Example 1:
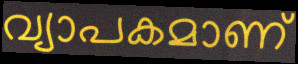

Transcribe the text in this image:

വ്യാപകമാണ്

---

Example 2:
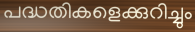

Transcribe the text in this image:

പദ്ധതികളെക്കുറിച്ചും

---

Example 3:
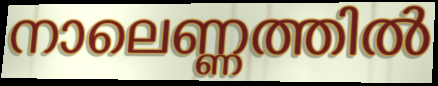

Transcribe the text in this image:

നാലെണ്ണത്തിൽ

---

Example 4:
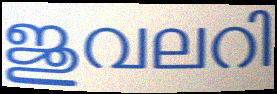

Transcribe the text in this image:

ജുവലറി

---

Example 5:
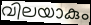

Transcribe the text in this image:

വിലയാകും